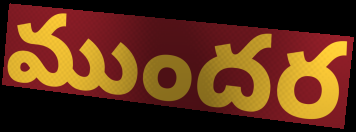
ముందర